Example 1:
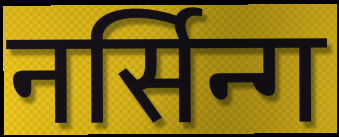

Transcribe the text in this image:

नर्सिन्ग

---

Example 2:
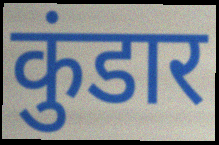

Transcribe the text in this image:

कुंडार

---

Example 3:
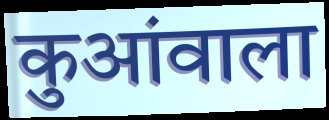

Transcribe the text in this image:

कुआंवाला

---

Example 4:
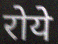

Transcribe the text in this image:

रोये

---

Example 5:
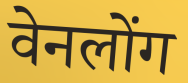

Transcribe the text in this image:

वेनलोंग